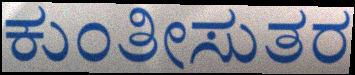
ಕುಂತೀಸುತರ